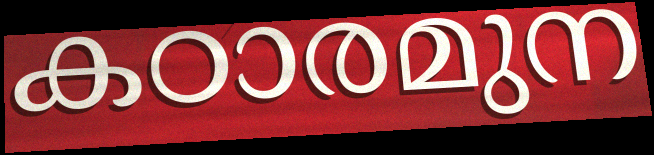
കഠാരമുന